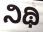
ನಿಥಿ